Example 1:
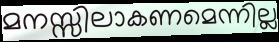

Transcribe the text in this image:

മനസ്സിലാകണമെന്നില്ല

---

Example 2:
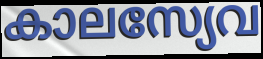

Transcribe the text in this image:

കാലസ്യേവ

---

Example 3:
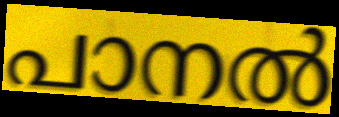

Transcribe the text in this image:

പാനൽ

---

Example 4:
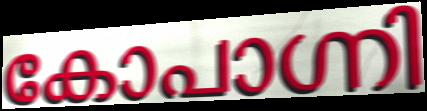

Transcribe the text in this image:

കോപാഗ്നി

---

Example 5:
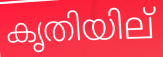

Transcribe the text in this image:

കൃതിയില്